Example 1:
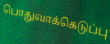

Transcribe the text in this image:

பொதுவாக்கெடுப்பு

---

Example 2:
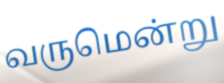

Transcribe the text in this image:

வருமென்று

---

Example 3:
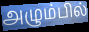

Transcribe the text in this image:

அழும்பில்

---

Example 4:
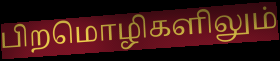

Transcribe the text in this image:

பிறமொழிகளிலும்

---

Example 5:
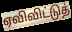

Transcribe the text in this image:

ஏவிவிட்டுத்